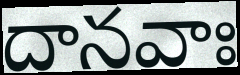
దానవాః